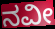
ನವೀ